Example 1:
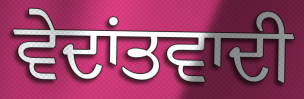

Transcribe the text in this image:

ਵੇਦਾਂਤਵਾਦੀ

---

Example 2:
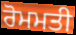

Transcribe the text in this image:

ਰੋਮਮਤੀ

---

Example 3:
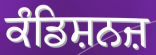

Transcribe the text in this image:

ਕੰਡਿਸ਼ਨਜ਼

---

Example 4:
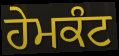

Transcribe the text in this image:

ਹੇਮਕੰਟ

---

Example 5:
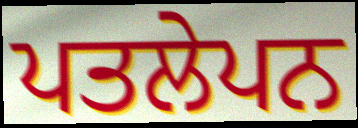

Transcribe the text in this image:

ਪਤਲੇਪਨ